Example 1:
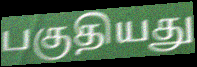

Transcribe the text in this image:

பகுதியது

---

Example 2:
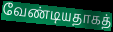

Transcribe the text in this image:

வேண்டியதாகத்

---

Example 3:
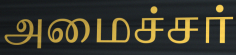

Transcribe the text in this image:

அமைச்சர்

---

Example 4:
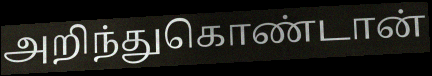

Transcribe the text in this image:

அறிந்துகொண்டான்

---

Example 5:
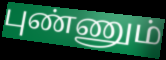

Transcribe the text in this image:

புண்ணும்